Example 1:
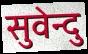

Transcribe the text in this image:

सुवेन्दु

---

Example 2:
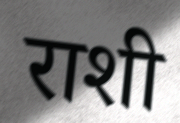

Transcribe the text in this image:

राशी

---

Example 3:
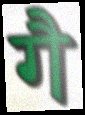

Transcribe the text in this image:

गै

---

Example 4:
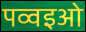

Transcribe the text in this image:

पव्वइओ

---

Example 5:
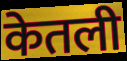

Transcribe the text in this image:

केतली